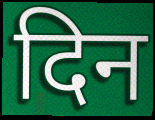
दिन